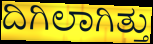
ದಿಗಿಲಾಗಿತ್ತು